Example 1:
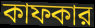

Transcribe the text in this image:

কাফকার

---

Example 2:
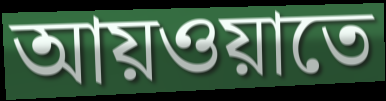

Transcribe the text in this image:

আয়ওয়াতে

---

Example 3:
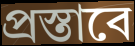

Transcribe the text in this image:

প্রস্তাবে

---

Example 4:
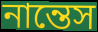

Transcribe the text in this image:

নান্তেস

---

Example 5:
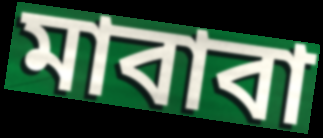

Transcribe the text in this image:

মাবাবা